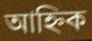
আহ্নিক